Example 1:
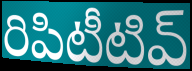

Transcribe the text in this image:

రిపిటీటివ్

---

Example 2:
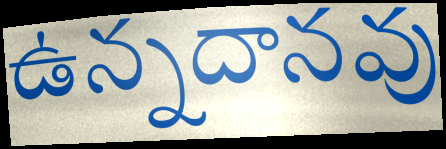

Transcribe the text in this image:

ఉన్నదానవు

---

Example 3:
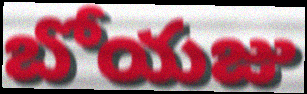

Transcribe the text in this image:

బోయజు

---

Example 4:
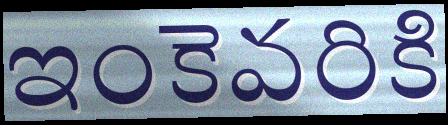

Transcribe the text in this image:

ఇంకెవరికి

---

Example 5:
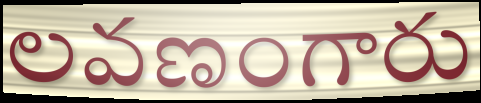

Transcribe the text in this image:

లవణంగారు